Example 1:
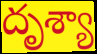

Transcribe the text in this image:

దృశ్యా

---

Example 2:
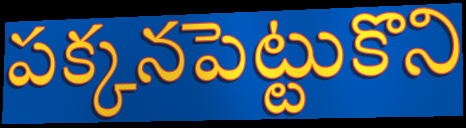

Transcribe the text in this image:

పక్కనపెట్టుకొని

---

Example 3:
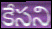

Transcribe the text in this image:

కేసని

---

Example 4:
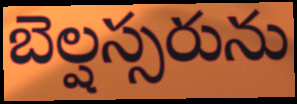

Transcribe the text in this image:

బెల్షస్సరును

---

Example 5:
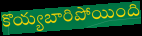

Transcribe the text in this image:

కొయ్యబారిపోయింది